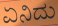
ಏನಿದು